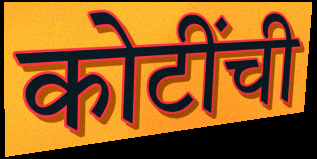
कोटींची